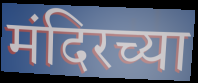
मंदिरच्या